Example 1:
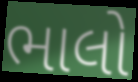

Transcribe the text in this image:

ભાલો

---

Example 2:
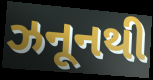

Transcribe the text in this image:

ઝનૂનથી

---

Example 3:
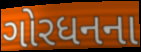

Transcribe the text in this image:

ગોરધનના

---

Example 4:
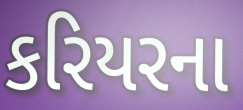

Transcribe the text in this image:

કરિયરના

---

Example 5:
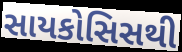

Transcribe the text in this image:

સાયકોસિસથી